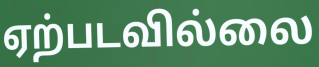
ஏற்படவில்லை